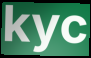
kyc